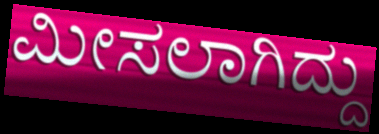
ಮೀಸಲಾಗಿದ್ದು